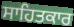
ਸਾਹਿਤਕਾਰ